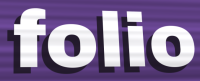
folio